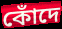
কোঁদে